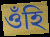
ওঁহি